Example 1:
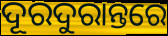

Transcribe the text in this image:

ଦୂରଦୁରାନ୍ତରେ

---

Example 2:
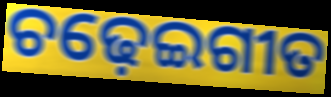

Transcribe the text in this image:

ଚଢ଼େଇଗୀତ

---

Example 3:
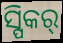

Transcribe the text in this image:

ସ୍ପିକର୍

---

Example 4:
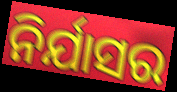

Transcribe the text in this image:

ନିର୍ଯାସର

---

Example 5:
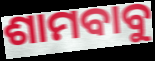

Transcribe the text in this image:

ଶାମବାବୁ